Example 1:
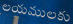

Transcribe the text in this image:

లయములకు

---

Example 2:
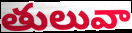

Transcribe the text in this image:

తులువా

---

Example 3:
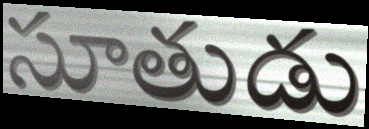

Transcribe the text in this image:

సూతుడు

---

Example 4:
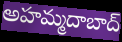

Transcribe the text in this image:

అహమ్మదాబాద్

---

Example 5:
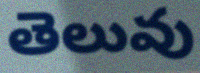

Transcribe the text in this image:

తెలువు